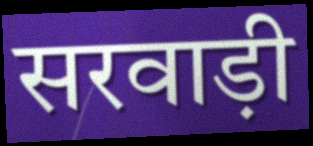
सरवाड़ी